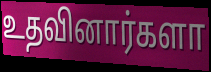
உதவினார்களா